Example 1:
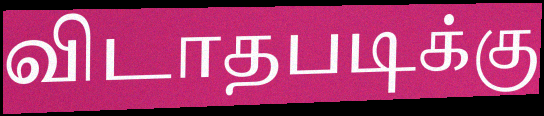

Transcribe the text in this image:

விடாதபடிக்கு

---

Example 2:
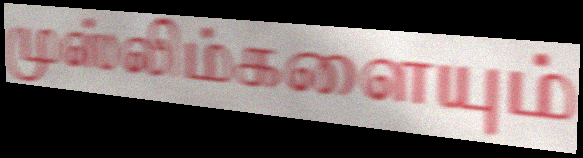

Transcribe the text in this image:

முஸ்லிம்களையும்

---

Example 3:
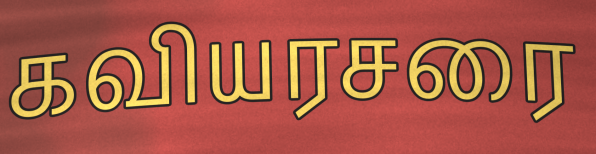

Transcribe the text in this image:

கவியரசரை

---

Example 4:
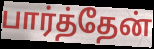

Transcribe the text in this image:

பார்த்தேன்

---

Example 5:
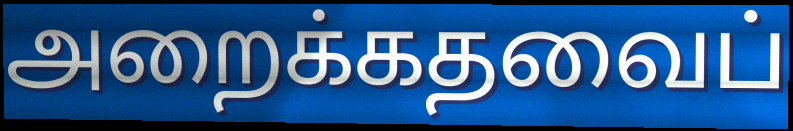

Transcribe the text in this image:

அறைக்கதவைப்